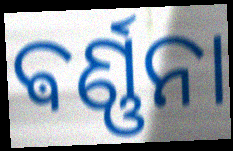
ଵର୍ଣ୍ଣନା